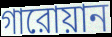
গারোয়ান